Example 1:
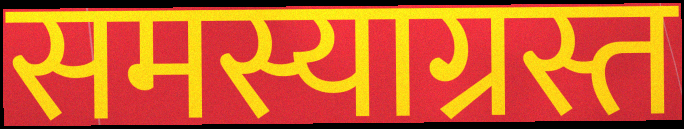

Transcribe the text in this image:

समस्याग्रस्त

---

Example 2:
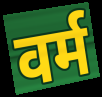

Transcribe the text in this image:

वर्म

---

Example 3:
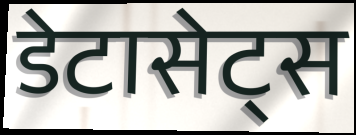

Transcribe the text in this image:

डेटासेट्स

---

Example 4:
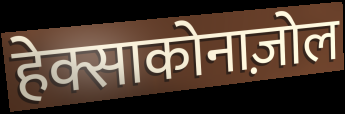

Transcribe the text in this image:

हेक्साकोनाज़ोल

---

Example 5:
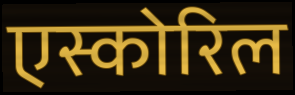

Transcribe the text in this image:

एस्कोरिल